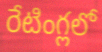
రేటింగ్లలో